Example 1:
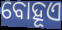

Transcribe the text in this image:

ବୋହୂଏ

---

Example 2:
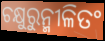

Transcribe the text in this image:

ଚକ୍ଷୁରୁନ୍ମୀଳିତଂ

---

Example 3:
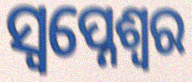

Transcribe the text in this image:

ସ୍ଵପ୍ନେଶ୍ଵର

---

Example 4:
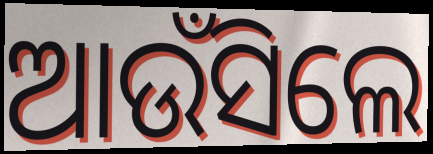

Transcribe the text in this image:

ଆଉଁସିଲେ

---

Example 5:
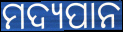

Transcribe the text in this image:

ମଦ୍ୟପାନ